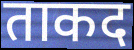
ताकद